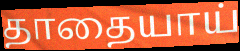
தாதையாய்